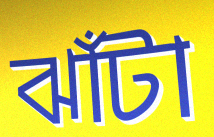
ঝাঁটা